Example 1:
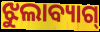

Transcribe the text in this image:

ଝୁଲାବ୍ୟାଗ୍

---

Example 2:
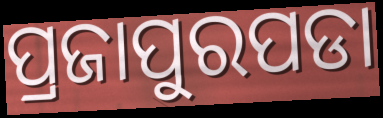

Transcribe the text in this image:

ପ୍ରଜାପୁରପଡା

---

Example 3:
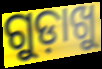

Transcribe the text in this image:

ଗୁଡ଼ାଖୁ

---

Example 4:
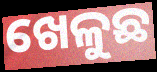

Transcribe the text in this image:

ଖେଳୁଛ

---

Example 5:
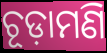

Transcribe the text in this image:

ଚୂଡ଼ାମଣି